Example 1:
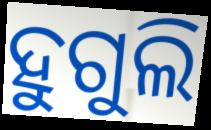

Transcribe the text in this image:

ହୁଗୁଲି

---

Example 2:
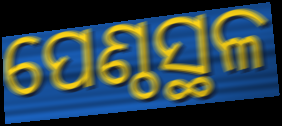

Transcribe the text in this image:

ପେଣ୍ଠସ୍ଥଳ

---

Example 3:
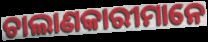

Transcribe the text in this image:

ଚାଲାଣକାରୀମାନେ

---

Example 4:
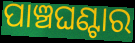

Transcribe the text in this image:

ପାଞ୍ଚଘଣ୍ଟାର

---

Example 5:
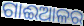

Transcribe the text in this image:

ଗାଈଆଳର